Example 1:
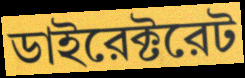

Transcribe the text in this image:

ডাইরেক্টরেট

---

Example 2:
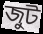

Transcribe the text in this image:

জুট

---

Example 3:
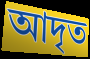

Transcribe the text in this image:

আদৃত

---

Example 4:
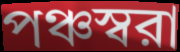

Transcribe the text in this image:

পঞ্চস্বরা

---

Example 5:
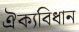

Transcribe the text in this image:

ঐক্যবিধান